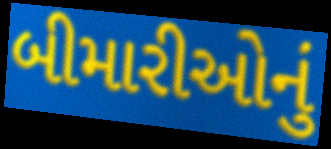
બીમારીઓનું